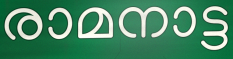
രാമനാട്ട